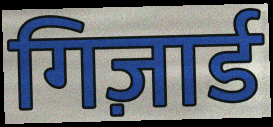
गिज़ार्ड